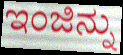
ಇಂಜಿನ್ನು